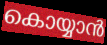
കൊയ്യാൻ